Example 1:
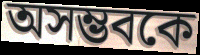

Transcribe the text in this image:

অসম্ভবকে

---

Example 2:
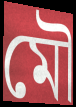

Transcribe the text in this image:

মৌ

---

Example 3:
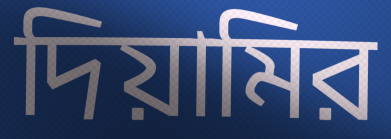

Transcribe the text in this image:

দিয়ামির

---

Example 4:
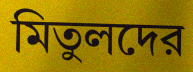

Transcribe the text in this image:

মিতুলদের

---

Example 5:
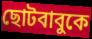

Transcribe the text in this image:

ছোটবাবুকে